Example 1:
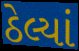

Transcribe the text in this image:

ઠેલ્યાં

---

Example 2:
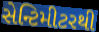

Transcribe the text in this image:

સેન્ટિમીટરથી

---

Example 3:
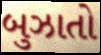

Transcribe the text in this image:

બુઝાતો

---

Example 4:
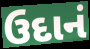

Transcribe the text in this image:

ઉદાનં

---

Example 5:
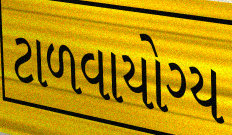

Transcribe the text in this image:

ટાળવાયોગ્ય